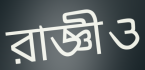
রাজ্ঞীও